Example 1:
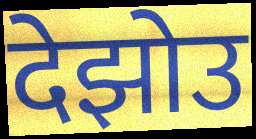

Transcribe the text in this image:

देझोउ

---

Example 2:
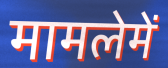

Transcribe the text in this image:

मामलेमें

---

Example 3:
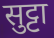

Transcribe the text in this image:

सुट्टा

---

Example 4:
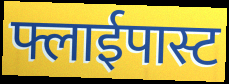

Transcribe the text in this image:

फ्लाईपास्ट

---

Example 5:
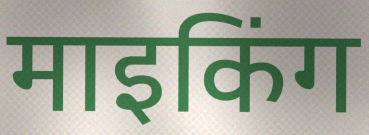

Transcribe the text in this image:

माइकिंग